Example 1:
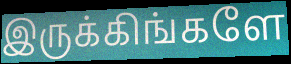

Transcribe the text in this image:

இருக்கிங்களே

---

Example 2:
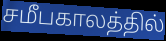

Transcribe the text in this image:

சமீபகாலத்தில்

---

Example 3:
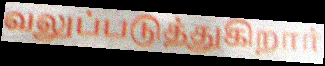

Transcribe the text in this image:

வலுப்படுத்துகிறார்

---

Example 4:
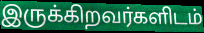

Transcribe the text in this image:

இருக்கிறவர்களிடம்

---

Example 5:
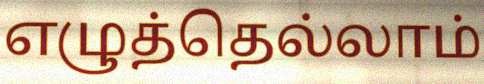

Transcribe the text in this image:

எழுத்தெல்லாம்